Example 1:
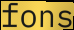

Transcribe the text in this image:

fons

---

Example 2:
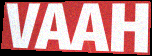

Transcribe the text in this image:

VAAH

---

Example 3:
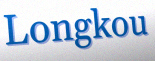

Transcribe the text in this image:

Longkou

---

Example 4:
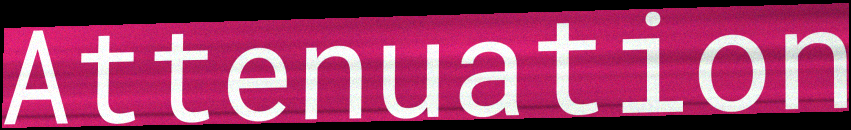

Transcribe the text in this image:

Attenuation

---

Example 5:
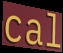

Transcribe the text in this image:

cal